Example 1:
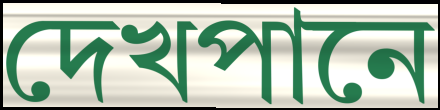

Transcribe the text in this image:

দেখপানে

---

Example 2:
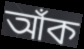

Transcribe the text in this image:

আঁক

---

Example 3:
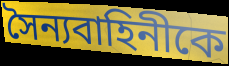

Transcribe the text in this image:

সৈন্যবাহিনীকে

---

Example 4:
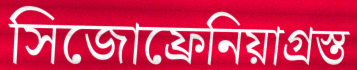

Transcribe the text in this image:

সিজোফ্রেনিয়াগ্রস্ত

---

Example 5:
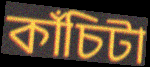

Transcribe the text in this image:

কাঁচিটা